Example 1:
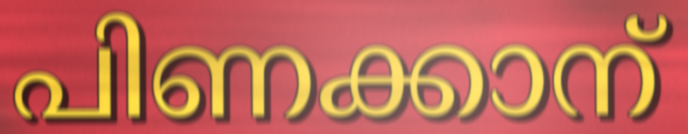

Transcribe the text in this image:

പിണക്കാന്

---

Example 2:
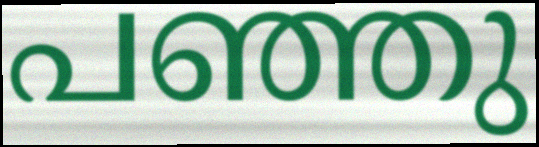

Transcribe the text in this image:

പഞ്ഞു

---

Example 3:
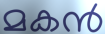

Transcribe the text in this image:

മകൻ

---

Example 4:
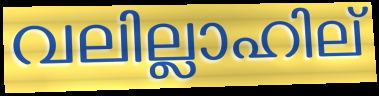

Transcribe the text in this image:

വലില്ലാഹില്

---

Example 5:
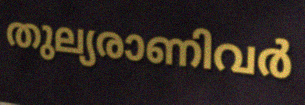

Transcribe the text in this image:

തുല്യരാണിവർ